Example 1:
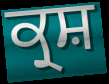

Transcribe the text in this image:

ਕ੍ਰਸ਼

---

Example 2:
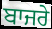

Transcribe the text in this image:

ਬਾਜਰੇ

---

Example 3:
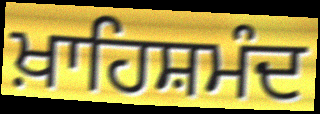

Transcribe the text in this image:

ਖ਼ਾਹਿਸ਼ਮੰਦ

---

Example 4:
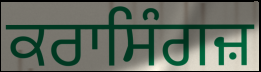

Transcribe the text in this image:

ਕਰਾਸਿੰਗਜ਼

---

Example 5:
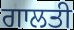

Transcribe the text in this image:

ਗਾਲਤੀ